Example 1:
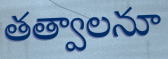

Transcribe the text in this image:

తత్వాలనూ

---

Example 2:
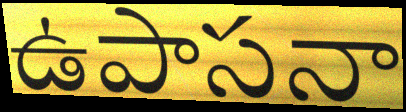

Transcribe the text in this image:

ఉపాసనా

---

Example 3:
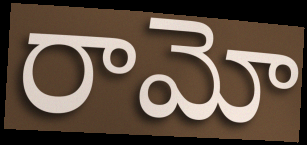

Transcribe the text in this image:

రామో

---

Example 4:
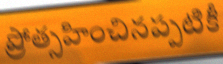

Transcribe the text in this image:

ప్రోత్సహించినప్పటికీ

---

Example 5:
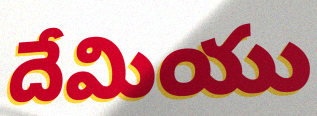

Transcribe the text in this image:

దేమియు